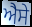
ਐੇਸੇ